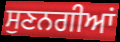
ਸੁਣਨਗੀਆਂ